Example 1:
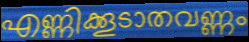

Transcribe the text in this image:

എണ്ണിക്കൂടാതവണ്ണം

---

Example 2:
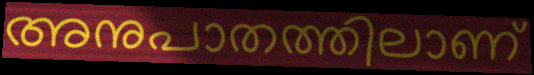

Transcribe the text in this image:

അനുപാതത്തിലാണ്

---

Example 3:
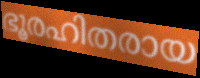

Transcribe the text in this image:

ഭൂരഹിതരായ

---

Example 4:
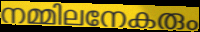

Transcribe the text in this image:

നമ്മിലനേകരും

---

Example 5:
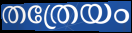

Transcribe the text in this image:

തത്രേയം